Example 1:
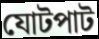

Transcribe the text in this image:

যোটপাট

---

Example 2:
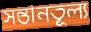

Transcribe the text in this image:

সন্তানতূল্য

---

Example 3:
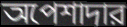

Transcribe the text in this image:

অপেশাদার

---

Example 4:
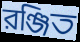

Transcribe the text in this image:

রঞ্জিত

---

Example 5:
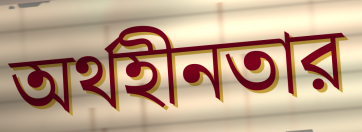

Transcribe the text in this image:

অর্থহীনতার